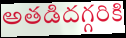
అతడిదగ్గరికి